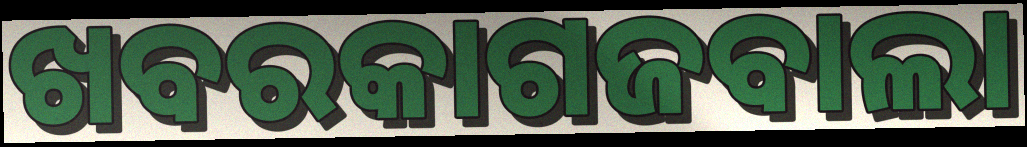
ଖବରକାଗଜବାଲା